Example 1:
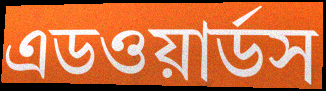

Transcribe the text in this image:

এডওয়ার্ডস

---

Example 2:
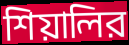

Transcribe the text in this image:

শিয়ালির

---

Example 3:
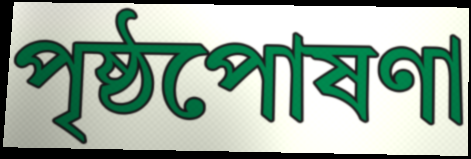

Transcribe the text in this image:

পৃষ্ঠপোষণা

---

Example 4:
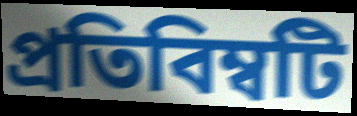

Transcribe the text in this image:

প্রতিবিম্বটি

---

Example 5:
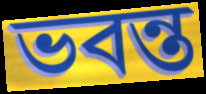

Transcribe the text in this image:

ভবন্ত